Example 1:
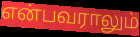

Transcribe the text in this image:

என்பவராலும்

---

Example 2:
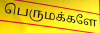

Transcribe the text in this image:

பெருமக்களே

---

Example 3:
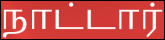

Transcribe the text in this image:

நாட்டார்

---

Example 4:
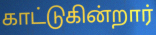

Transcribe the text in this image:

காட்டுகின்றார்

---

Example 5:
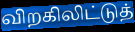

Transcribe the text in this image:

விறகிலிட்டுத்